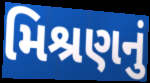
મિશ્રણનું